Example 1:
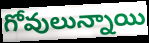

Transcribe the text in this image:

గోవులున్నాయి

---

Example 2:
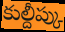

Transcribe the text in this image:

కుల్దీప్కు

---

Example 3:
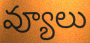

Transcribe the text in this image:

వ్యూలు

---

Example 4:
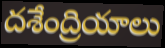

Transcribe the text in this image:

దశేంద్రియాలు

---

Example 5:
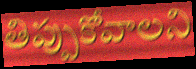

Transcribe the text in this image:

తిప్పుకోవాలని